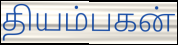
தியம்பகன்